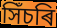
সিঁচৰি